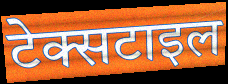
टेक्‍सटाइल